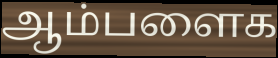
ஆம்பளைக